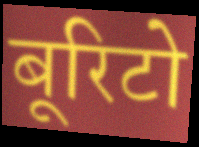
बूरिटो